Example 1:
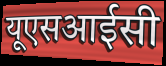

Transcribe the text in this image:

यूएसआईसी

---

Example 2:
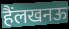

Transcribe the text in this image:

हैंलखनऊ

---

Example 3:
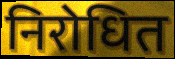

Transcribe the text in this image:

निरोधित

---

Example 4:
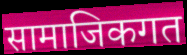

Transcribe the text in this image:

सामाजिकगत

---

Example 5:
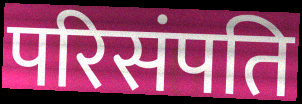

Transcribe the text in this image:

परिसंपति